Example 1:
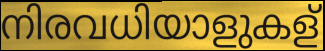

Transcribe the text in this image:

നിരവധിയാളുകള്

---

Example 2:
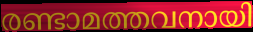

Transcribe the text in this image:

രണ്ടാമത്തവനായി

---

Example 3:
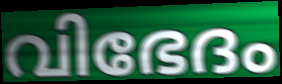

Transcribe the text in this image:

വിഭേദം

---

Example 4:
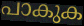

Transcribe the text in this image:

പാകുക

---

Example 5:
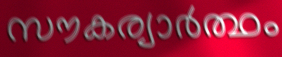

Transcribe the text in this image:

സൗകര്യാർത്ഥം